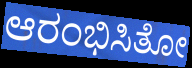
ಆರಂಭಿಸಿತೋ